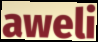
aweli